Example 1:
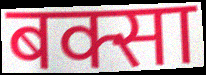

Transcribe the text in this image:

बक्सा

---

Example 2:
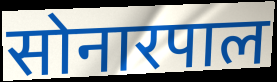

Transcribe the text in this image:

सोनारपाल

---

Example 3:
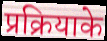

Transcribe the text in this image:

प्रक्रियाके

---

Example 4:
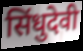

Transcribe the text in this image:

सिंधुदेवी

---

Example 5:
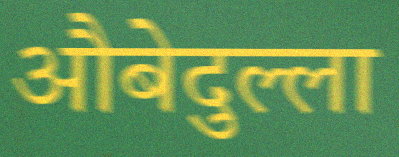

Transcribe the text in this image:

औबेदुल्ला